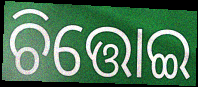
ଚିତ୍ତୋଇ